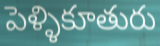
పెళ్ళికూతురు